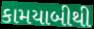
કામયાબીથી